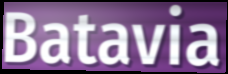
Batavia